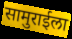
सामुराईला